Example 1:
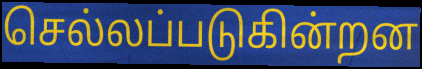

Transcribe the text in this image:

செல்லப்படுகின்றன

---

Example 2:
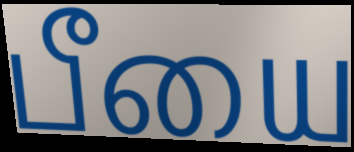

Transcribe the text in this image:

பீயை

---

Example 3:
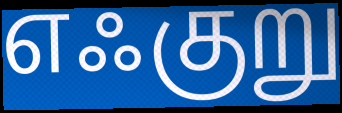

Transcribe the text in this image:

எஃகுறு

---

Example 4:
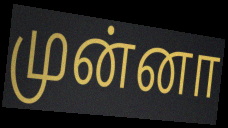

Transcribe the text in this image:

முன்னா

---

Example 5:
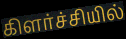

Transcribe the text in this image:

கிளர்ச்சியில்